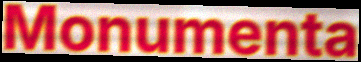
Monumenta